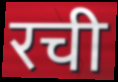
रची